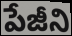
పేజీని